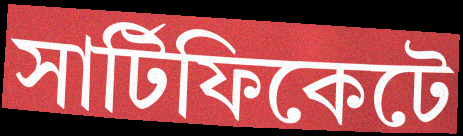
সার্টিফিকেটে